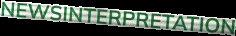
NEWSINTERPRETATION